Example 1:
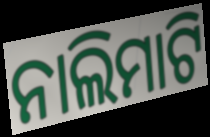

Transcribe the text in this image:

ନାଲିମାଟି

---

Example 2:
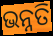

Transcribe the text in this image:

ଭନ୍ନତି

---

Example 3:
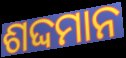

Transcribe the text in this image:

ଶଦ୍ଦମାନ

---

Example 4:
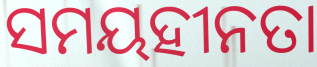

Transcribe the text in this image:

ସମୟହୀନତା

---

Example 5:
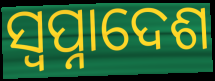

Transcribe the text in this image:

ସ୍ବପ୍ନାଦେଶ